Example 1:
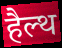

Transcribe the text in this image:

हैल्थ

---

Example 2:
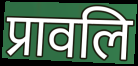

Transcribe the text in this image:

प्रावलि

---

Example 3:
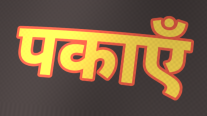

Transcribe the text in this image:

पकाएँ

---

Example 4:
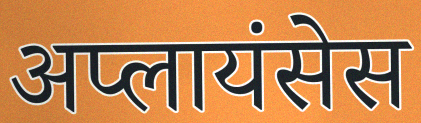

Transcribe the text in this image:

अप्लायंसेस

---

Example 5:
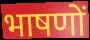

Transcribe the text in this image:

भाषणों